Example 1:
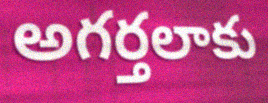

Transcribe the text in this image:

అగర్తలాకు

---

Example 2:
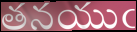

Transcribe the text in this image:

తనయుఁ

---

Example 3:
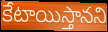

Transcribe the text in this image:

కేటాయిస్తానని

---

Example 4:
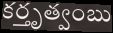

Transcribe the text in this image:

కర్తృత్వంబు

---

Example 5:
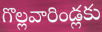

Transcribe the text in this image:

గొల్లవారిండ్లకు